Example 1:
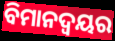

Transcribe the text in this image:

ବିମାନଦ୍ବୟର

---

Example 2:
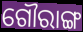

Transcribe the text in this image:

ଗୌରାଙ୍ଗ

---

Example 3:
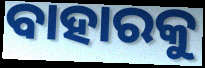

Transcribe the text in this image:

ବାହାରକୁ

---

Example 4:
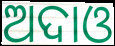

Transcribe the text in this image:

ଅଦାଓ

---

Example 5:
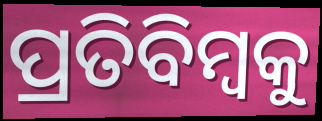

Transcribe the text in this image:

ପ୍ରତିବିମ୍ବକୁ